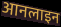
आनलाइन